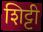
शिट्टी